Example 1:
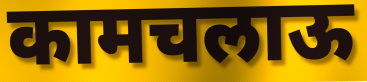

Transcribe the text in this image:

कामचलाऊ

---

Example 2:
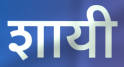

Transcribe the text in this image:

शायी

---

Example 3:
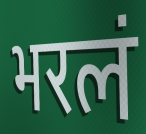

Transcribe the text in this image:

भरलं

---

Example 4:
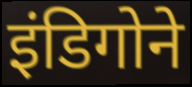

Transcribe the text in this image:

इंडिगोने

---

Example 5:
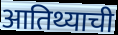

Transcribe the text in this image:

आतिथ्याची